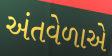
અંતવેળાએ